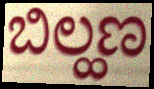
ಬಿಲ್ಹಣ